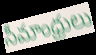
సీమాంధ్రులు